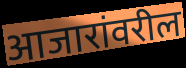
आजारांवरील